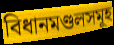
বিধানমণ্ডলসমূহ